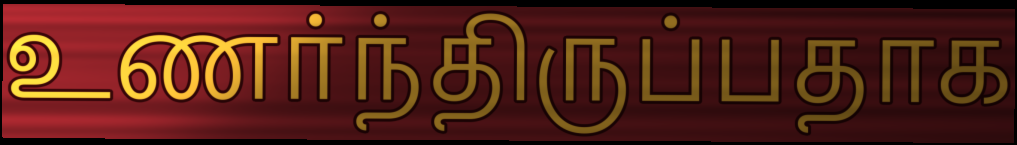
உணர்ந்திருப்பதாக